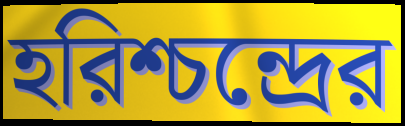
হরিশ্চন্দ্রের